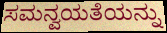
ಸಮನ್ವಯತೆಯನ್ನು